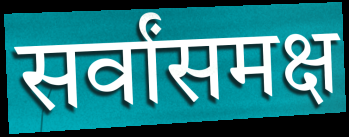
सर्वांसमक्ष